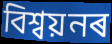
বিশ্বয়নৰ